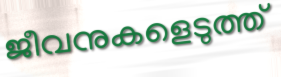
ജീവനുകളെടുത്ത്